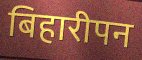
बिहारीपन